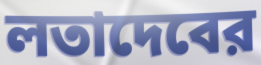
লতাদেবের